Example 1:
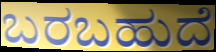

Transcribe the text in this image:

ಬರಬಹುದೆ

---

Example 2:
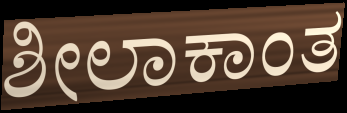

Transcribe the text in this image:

ಶೀಲಾಕಾಂತ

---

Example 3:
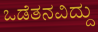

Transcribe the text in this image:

ಒಡೆತನವಿದ್ದು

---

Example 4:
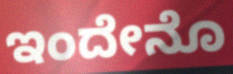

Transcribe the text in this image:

ಇಂದೇನೊ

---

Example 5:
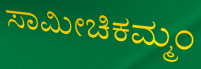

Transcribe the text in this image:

ಸಾಮೀಚಿಕಮ್ಮಂ